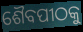
ଶୈବପୀଠକୁ